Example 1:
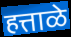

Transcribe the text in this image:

हत्ताळे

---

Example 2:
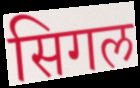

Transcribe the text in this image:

सिगल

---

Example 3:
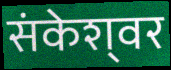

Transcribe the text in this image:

संकेश्वर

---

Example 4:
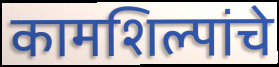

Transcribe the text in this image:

कामशिल्पांचे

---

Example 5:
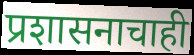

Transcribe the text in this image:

प्रशासनाचाही